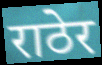
राठेर